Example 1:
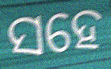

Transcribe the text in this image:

ସହେ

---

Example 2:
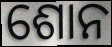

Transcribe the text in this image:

ଶୋନ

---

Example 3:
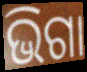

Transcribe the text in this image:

ଭିଗା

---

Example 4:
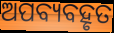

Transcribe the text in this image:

ଅପବ୍ୟବହୃତ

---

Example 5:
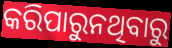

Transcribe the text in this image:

କରିପାରୁନଥିବାରୁ